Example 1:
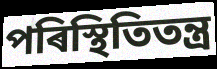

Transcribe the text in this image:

পৰিস্থিতিতন্ত্ৰ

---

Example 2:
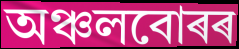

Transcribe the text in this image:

অঞ্চলবোৰৰ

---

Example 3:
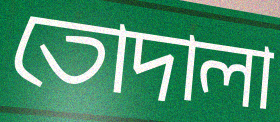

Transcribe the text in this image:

তোদালা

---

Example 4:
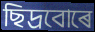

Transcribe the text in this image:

ছিদ্ৰবোৰে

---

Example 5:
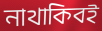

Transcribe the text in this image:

নাথাকিবই